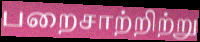
பறைசாற்றிற்று